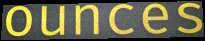
ounces